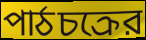
পাঠচক্রের